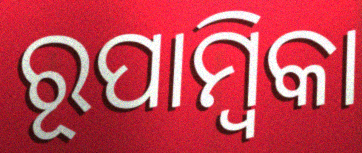
ରୂପାମ୍ୱିକା